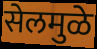
सेलमुळे